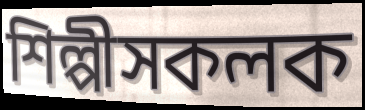
শিল্পীসকলক